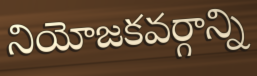
నియోజకవర్గాన్ని